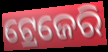
ଟ୍ରେଜେରି